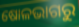
ଷୋଳଭାଗରୁ